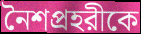
নৈশপ্রহরীকে